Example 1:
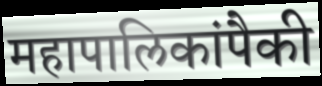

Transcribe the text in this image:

महापालिकांपैकी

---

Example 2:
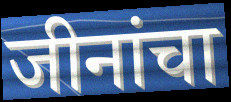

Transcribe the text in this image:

जीनांचा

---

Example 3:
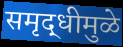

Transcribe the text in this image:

समृद्धीमुळे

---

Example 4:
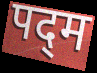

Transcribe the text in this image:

पद्‌म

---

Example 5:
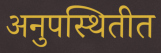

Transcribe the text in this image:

अनुपस्थितीत